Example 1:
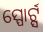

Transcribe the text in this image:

ସ୍ପୋର୍ଟ୍ସ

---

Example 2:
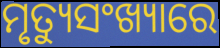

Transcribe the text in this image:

ମୃତ୍ୟୁସଂଖ୍ୟାରେ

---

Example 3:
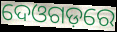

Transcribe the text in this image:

ଦେଓଗଡ଼ରେ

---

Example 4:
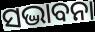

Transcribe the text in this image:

ସଦ୍ଭାବନା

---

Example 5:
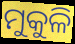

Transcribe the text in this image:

ମୁକୁଳି